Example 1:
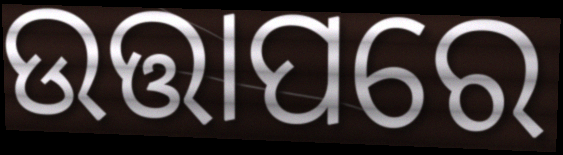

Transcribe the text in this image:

ଉତ୍ତାପରେ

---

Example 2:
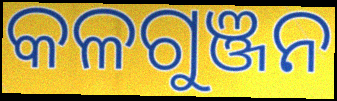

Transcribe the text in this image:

କଳଗୁଞ୍ଜନ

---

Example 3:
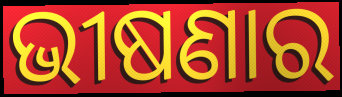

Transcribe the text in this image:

ଭୀଷଣାର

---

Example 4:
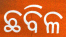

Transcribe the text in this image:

ଛବିଳ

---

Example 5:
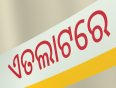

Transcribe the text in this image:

ଏତଲାଟରେ